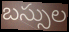
బస్సుల